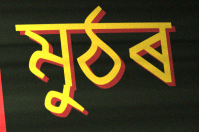
মুঠৰ